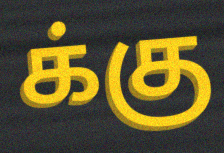
க்கு